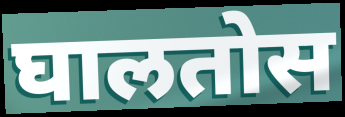
घालतोस